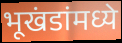
भूखंडांमध्ये